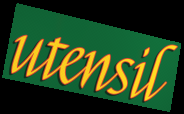
utensil